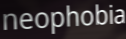
neophobia